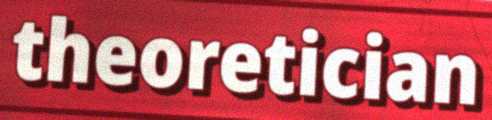
theoretician